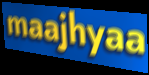
maajhyaa